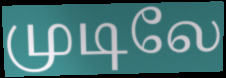
முடிலே